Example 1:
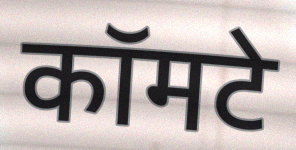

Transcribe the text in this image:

कॉमटे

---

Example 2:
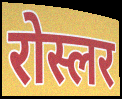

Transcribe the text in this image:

रोस्लर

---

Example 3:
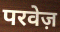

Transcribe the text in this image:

परवेज़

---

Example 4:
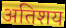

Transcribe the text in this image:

अतिशय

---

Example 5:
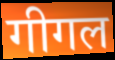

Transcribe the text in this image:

गीगल